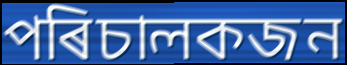
পৰিচালকজন